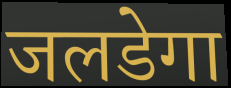
जलडेगा